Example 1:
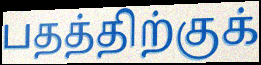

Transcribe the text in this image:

பதத்திற்குக்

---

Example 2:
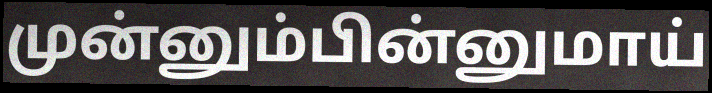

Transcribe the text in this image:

முன்னும்பின்னுமாய்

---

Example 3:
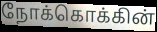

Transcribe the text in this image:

நோக்கொக்கின்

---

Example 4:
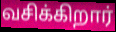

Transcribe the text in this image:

வசிக்கிறார்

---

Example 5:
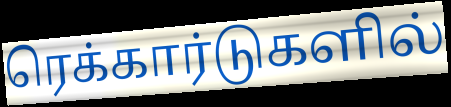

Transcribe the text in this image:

ரெக்கார்டுகளில்